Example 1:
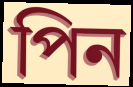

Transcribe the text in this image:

পিন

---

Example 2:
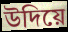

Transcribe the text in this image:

উদিয়ে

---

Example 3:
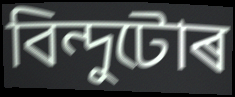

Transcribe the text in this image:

বিন্দুটোৰ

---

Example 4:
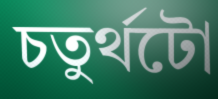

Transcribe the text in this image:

চতুৰ্থটো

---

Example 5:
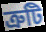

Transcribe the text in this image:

ত্ৰুটি